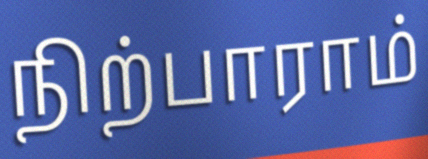
நிற்பாராம்